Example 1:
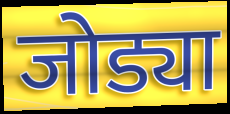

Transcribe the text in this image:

जोड्या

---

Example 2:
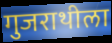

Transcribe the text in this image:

गुजराथीला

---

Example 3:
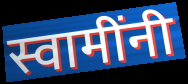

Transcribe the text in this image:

स्वामींनी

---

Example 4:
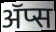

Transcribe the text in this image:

ॲप्स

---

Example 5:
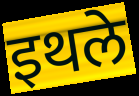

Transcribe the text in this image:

इथले